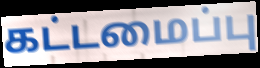
கட்டமைப்பு